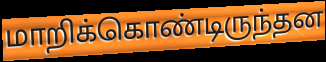
மாறிக்கொண்டிருந்தன